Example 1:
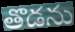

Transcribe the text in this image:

తొడను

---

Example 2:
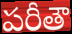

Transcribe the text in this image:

పరీతౌ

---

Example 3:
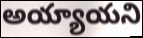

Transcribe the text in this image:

అయ్యాయని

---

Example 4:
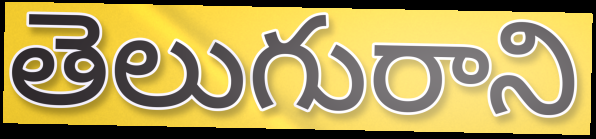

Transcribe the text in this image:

తెలుగురాని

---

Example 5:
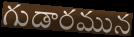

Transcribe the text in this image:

గుడారమున